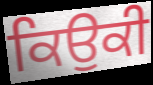
ਕਿਉਕੀ